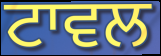
ਟਾਵਲ